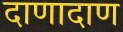
दाणादाण